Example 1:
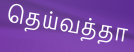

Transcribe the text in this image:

தெய்வத்தா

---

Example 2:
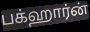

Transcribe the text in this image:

பக்ஹார்ன்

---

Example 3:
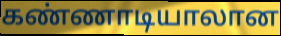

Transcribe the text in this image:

கண்ணாடியாலான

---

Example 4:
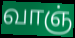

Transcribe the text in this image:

வாஞ்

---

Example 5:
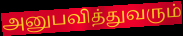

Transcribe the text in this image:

அனுபவித்துவரும்